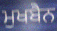
ਮੁਖਬੈਨ